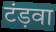
टंड़वा